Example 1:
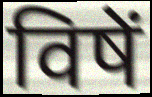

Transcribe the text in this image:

विषें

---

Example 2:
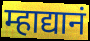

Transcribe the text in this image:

म्हाद्यानं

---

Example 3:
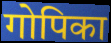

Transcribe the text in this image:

गोपिका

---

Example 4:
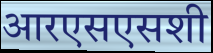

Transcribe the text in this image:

आरएसएसशी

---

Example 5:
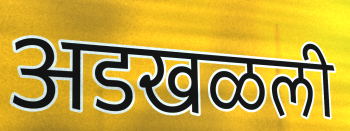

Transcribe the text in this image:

अडखळली